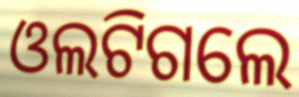
ଓଲଟିଗଲେ